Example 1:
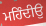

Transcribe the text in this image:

ਮਹਿੰਦੀਉ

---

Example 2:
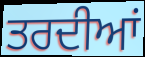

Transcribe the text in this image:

ਤਰਦੀਆਂ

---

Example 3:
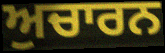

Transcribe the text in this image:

ਅੁਚਾਰਨ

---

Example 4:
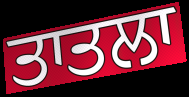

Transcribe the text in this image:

ਤਾਤਲਾ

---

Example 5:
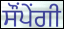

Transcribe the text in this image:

ਸੌਂਪੇਂਗੀ